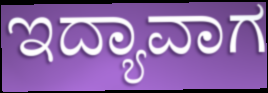
ಇದ್ಯಾವಾಗ